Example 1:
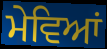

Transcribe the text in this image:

ਮੇਵਿਆਂ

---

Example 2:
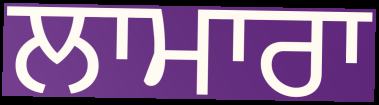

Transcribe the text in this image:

ਲਾਮਾਰਾ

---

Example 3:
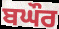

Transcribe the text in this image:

ਬਘੌਰ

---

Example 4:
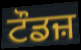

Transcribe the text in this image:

ਟੌਡਜ਼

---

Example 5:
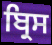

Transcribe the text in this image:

ਬ੍ਰਿਸ